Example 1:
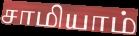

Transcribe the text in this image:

சாமியாம்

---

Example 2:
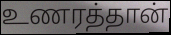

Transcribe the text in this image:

உணரத்தான்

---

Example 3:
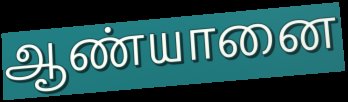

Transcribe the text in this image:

ஆண்யானை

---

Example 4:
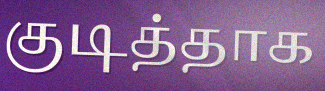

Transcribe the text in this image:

குடித்தாக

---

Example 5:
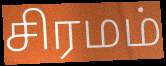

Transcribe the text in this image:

சிரமம்